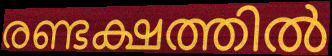
രണ്ടക്ഷത്തിൽ